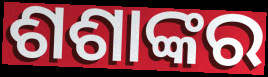
ଶଶାଙ୍କର